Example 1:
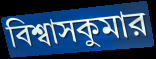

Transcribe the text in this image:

বিশ্বাসকুমার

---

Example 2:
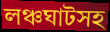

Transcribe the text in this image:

লঞ্চঘাটসহ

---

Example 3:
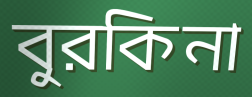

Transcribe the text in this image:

বুরকিনা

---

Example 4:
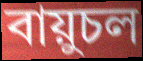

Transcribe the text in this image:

বায়ুচল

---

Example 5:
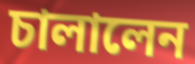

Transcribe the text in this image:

চালালেন